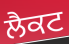
ਲੈਕਟ